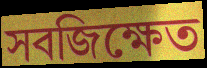
সবজিক্ষেত